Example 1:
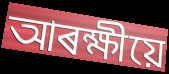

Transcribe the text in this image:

আৰক্ষীয়ে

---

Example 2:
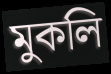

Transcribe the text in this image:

মুকলি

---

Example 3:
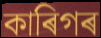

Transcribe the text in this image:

কাৰিগৰ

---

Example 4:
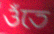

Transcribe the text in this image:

ওঁতে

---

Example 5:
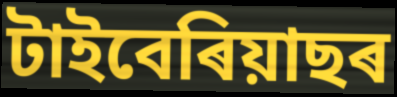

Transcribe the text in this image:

টাইবেৰিয়াছৰ